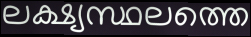
ലക്ഷ്യസ്ഥലത്തെ